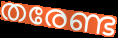
തരേണ്ട